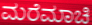
ಮರೆಮಾಚಿ